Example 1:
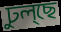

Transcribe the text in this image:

ঢুল্‌ছে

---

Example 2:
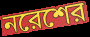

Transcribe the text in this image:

নরেশের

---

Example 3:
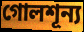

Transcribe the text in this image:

গোলশূন্য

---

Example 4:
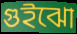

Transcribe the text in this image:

গুইঝো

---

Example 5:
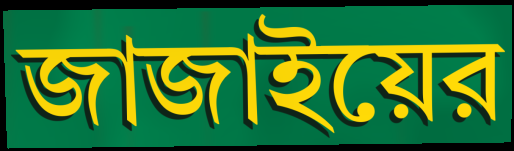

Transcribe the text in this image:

জাজাইয়ের